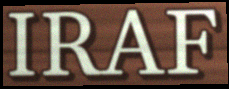
IRAF